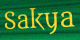
Sakya